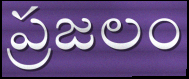
ప్రజలం